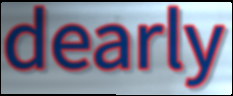
dearly